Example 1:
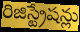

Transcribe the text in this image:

రిజిస్ట్రేషన్లు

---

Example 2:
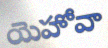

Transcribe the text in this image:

యెహోవా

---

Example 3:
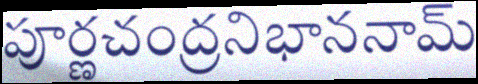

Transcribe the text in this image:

పూర్ణచంద్రనిభాననామ్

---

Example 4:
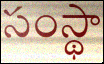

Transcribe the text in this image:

సంస్థా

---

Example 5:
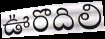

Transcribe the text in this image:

ఊరొదిలి